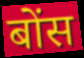
बोंस